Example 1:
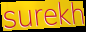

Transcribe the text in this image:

surekh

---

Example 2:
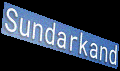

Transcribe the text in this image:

Sundarkand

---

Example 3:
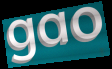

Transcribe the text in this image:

gao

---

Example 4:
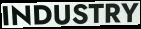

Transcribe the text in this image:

INDUSTRY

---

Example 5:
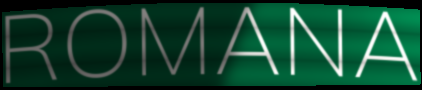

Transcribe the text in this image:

ROMANA